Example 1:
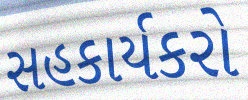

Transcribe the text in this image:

સહકાર્યકરો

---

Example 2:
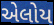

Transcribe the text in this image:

એલોય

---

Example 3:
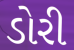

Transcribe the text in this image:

ડોરી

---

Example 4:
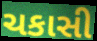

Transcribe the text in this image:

ચકાસી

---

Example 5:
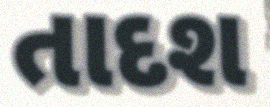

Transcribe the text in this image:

તાદશ